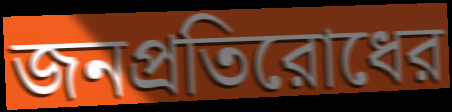
জনপ্রতিরোধের